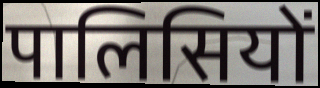
पालिसियों